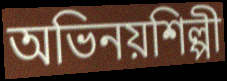
অভিনয়শিল্পী